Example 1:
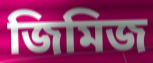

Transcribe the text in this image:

জিমিজ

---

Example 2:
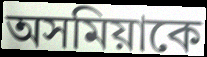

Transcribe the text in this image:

অসমিয়াকে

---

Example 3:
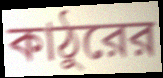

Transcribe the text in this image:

কাঠুরের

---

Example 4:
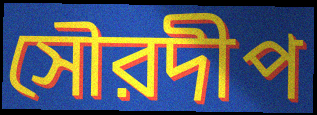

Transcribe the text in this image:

সৌরদীপ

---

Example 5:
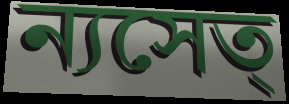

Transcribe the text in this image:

ন্যসেত্